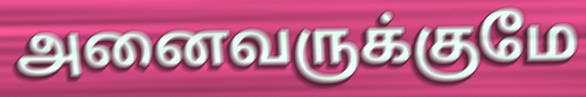
அனைவருக்குமே